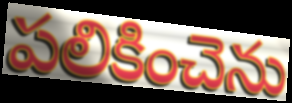
పలికించెను